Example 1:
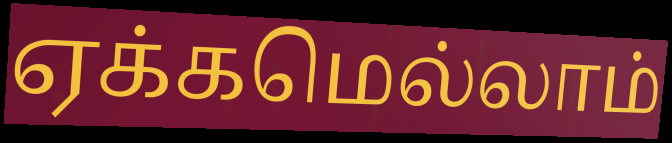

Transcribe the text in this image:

ஏக்கமெல்லாம்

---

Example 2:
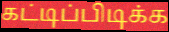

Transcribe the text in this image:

கட்டிப்பிடிக்க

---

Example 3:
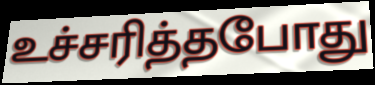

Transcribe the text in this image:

உச்சரித்தபோது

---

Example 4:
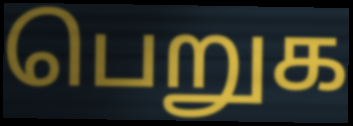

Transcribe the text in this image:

பெறுக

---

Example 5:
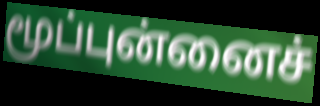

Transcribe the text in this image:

மூப்புன்னைச்